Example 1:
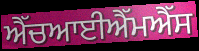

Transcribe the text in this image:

ਐੱਚਆਈਐੱਮਐੱਸ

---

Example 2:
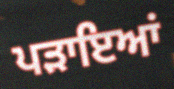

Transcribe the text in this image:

ਪੜਾਇਆਂ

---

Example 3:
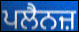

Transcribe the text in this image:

ਪਲੈਨਜ਼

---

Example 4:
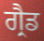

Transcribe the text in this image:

ਗ੍ਰੈਡ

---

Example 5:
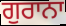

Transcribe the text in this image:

ਗੁਰਾਨਾ